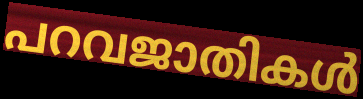
പറവജാതികൾ